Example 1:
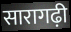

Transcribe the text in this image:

सारागढ़ी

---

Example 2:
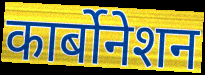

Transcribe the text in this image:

कार्बोनेशन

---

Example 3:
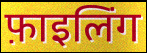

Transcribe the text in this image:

फ़ाइलिंग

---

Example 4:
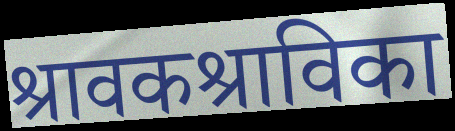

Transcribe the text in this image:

श्रावकश्राविका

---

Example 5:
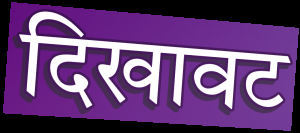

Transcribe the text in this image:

दिखावट